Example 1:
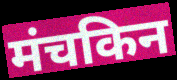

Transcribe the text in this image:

मंचकिन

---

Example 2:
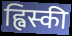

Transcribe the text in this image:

ह्विस्की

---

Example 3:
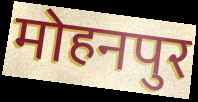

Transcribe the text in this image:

मोहनपुर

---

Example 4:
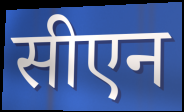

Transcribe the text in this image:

सीएन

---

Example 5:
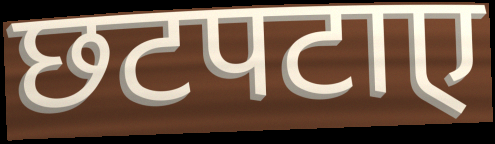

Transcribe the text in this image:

छटपटाए